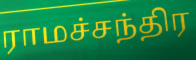
ராமச்சந்திர